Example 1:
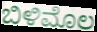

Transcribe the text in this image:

ಬಿಳಿಮೊಲ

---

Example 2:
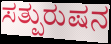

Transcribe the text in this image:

ಸತ್ಪುರುಷನ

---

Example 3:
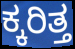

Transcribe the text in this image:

ಕ್ಕರಿತ್ತ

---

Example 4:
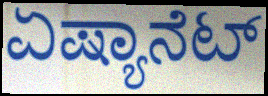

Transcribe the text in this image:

ಏಷ್ಯಾನೆಟ್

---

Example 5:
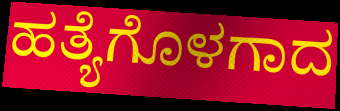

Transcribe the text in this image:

ಹತ್ಯೆಗೊಳಗಾದ